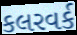
કલરવર્ક